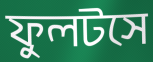
ফুলটসে